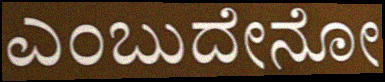
ಎಂಬುದೇನೋ